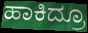
ಹಾಕಿದ್ರೂ